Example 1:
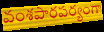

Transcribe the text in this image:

వంశపారపర్యంగా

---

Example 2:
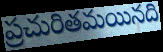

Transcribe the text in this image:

ప్రచురితమయినది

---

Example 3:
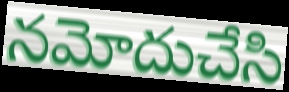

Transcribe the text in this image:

నమోదుచేసి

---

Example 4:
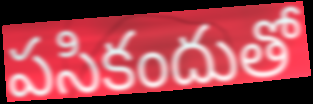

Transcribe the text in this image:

పసికందుతో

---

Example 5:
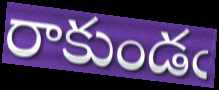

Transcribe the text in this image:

రాకుండఁ